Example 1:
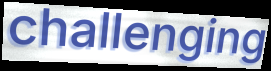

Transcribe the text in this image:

challenging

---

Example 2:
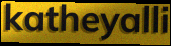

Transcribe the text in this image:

katheyalli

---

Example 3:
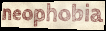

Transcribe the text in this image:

neophobia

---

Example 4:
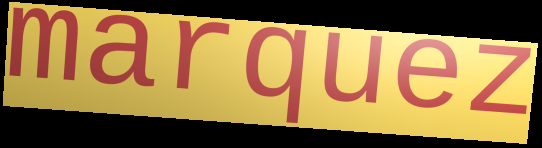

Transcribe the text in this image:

marquez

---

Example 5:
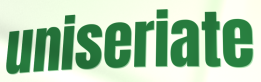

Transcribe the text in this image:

uniseriate